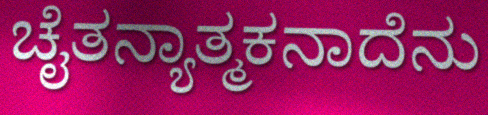
ಚೈತನ್ಯಾತ್ಮಕನಾದೆನು